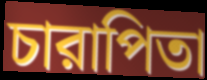
চারাপিতা